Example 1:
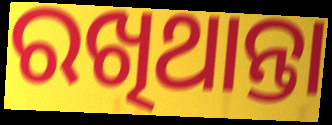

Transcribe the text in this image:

ରଖିଥାନ୍ତା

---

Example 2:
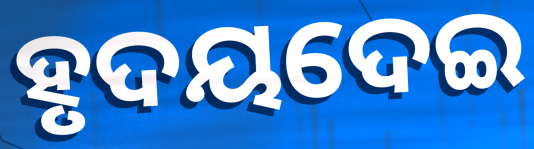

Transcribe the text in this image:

ହୃଦୟଦେଇ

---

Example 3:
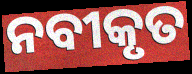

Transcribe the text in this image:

ନବୀକୃତ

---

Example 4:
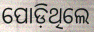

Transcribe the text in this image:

ପୋଡ଼ିଥିଲେ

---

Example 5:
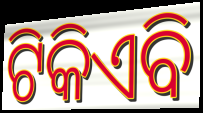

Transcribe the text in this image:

ଟିକିଏବି